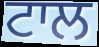
ਟਾਲ